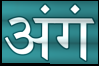
अंगं